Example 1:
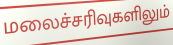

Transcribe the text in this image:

மலைச்சரிவுகளிலும்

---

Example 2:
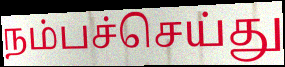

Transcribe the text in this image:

நம்பச்செய்து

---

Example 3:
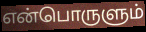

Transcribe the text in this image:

என்பொருளும்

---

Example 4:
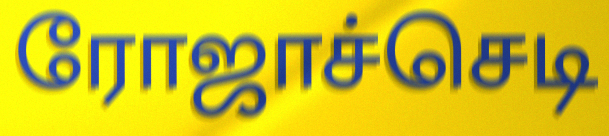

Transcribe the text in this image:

ரோஜாச்செடி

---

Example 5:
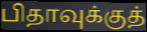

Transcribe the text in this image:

பிதாவுக்குத்